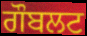
ਗੌਬਲਟ